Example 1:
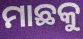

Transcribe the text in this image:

ମାଛକୁ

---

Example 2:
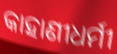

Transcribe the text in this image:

କାହାଣୀଧର୍ମୀ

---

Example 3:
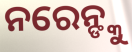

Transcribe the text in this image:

ନରେନ୍ଙ୍କୁ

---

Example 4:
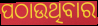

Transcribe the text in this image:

ପଠାଉଥିବାର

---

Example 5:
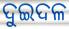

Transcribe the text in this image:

ଦୁଇଦଳ